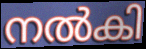
നൽകി